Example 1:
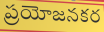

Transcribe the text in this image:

ప్రయోజనకర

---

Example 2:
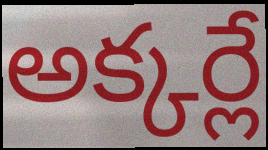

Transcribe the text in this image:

అక్కర్లే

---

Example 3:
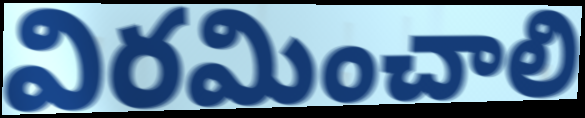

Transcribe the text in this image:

విరమించాలి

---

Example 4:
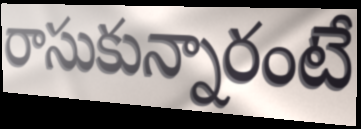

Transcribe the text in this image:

రాసుకున్నారంటే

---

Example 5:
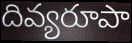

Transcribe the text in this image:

దివ్యరూపా